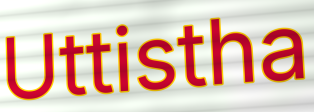
Uttistha